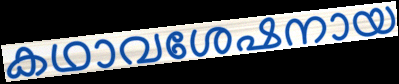
കഥാവശേഷനായ